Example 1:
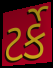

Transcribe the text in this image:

ટર્કે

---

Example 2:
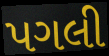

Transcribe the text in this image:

પગલી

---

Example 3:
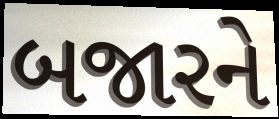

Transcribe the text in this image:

બજારને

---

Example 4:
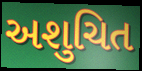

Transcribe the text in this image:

અશુચિત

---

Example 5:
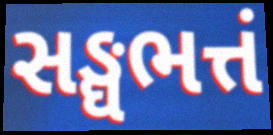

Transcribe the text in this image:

સઙ્ઘભત્તં